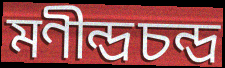
মণীন্দ্রচন্দ্র